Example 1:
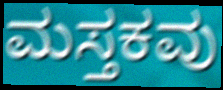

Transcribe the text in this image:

ಮಸ್ತಕವು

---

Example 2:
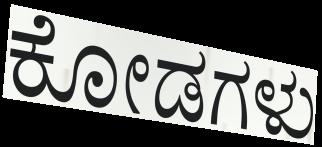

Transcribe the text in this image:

ಕೋಡಗಳು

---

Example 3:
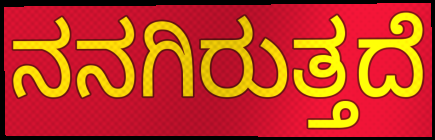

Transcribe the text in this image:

ನನಗಿರುತ್ತದೆ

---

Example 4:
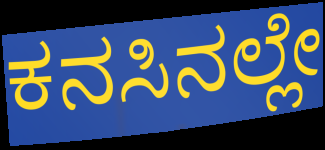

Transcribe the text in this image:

ಕನಸಿನಲ್ಲೇ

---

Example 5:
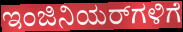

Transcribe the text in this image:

ಇಂಜಿನಿಯರ್‌ಗಳಿಗೆ